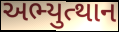
અભ્યુત્થાન